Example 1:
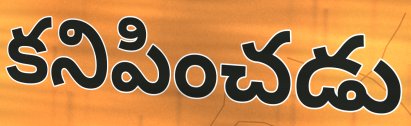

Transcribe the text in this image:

కనిపించడు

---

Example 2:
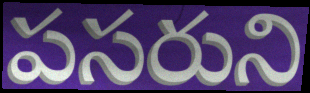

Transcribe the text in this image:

పసరుని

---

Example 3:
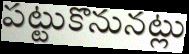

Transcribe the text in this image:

పట్టుకొనునట్లు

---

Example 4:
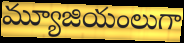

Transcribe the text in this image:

మ్యూజియంలుగా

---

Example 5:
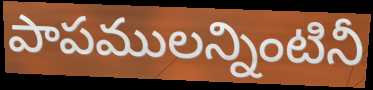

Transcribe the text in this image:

పాపములన్నింటినీ